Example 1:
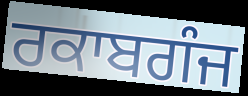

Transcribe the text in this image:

ਰਕਾਬਗੰਜ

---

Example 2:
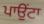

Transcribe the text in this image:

ਪਾਉਂਟਾ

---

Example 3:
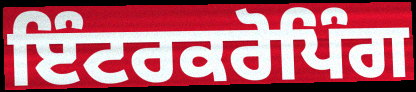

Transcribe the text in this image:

ਇੰਟਰਕਰੋਪਿੰਗ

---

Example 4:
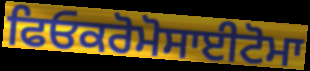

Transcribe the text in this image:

ਫਿਓਕਰੋਮੋਸਾਈਟੋਮਾ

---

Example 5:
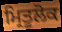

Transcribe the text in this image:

ਮ੍ਰਿਤੂਲੋਕ